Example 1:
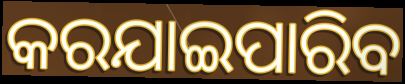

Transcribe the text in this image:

କରଯାଇପାରିବ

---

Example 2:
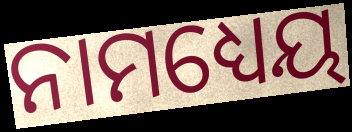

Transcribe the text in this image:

ନାମଧ୍ୟେୟ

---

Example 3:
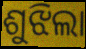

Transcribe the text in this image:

ଶୁଝିଲା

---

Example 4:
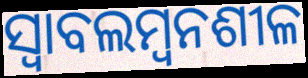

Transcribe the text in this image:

ସ୍ୱାବଲମ୍ୱନଶୀଳ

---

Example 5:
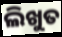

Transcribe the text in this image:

ଲିଖୁତ